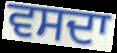
ਵਸਦਾ